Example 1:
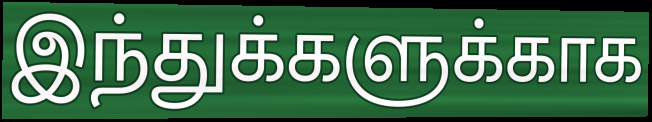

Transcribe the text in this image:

இந்துக்களுக்காக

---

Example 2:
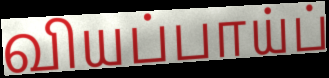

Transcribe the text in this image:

வியப்பாய்ப்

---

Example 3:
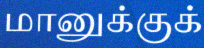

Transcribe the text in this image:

மானுக்குக்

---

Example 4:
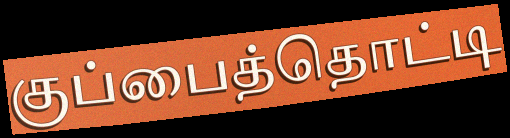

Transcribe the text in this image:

குப்பைத்தொட்டி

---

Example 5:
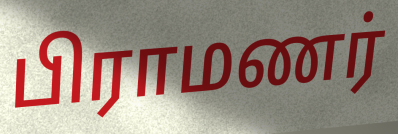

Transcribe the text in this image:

பிராமணர்